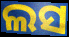
ଲସ